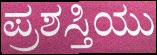
ಪ್ರಶಸ್ತಿಯು